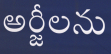
అర్జీలను